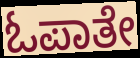
ಓಪಾತೇ